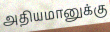
அதியமானுக்கு